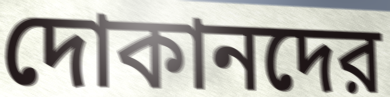
দোকানদের